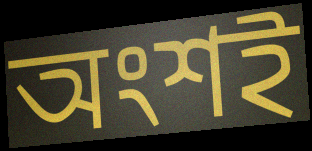
অংশই